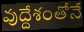
వుద్దేశంతోనే